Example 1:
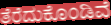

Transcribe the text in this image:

ತೆರೆದುಕೊಂಡಿವೆ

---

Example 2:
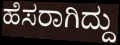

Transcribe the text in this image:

ಹೆಸರಾಗಿದ್ದು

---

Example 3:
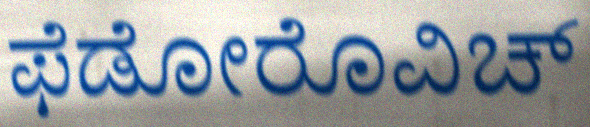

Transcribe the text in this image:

ಫೆಡೋರೊವಿಚ್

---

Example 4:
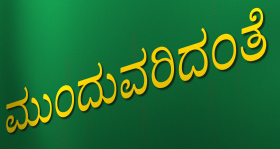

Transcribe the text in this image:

ಮುಂದುವರಿದಂತೆ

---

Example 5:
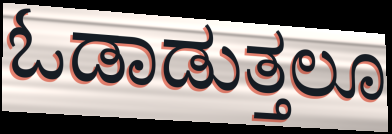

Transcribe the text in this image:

ಓಡಾಡುತ್ತಲೂ